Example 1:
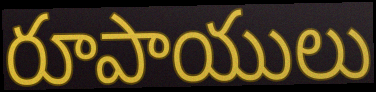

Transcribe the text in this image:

రూపాయులు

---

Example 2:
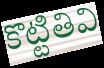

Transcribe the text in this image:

కొట్టితివి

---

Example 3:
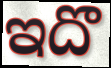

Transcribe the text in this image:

ఇదొ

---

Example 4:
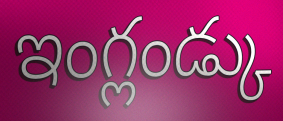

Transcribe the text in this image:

ఇంగ్లండ్కు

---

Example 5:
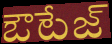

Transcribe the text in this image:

ఔటేజ్